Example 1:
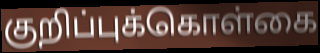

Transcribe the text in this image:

குறிப்புக்கொள்கை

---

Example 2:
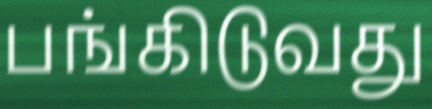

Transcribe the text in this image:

பங்கிடுவது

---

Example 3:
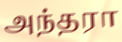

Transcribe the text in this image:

அந்தரா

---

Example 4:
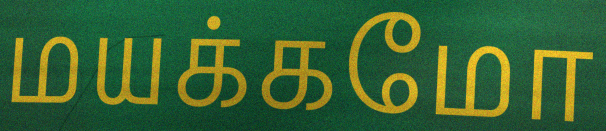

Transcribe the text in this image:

மயக்கமோ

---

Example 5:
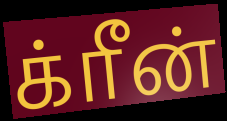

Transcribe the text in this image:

க்ரீன்